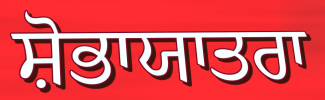
ਸ਼ੋਭਾਯਾਤਰਾ